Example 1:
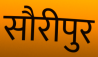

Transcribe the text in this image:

सौरीपुर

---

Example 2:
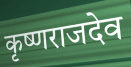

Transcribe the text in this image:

कृष्णराजदेव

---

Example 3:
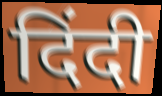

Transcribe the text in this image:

दिंदी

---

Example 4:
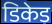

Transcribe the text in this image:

डिकेड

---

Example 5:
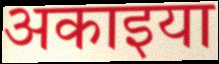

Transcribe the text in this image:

अकाइया